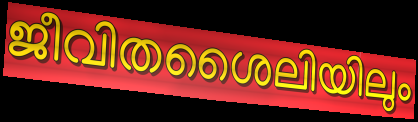
ജീവിതശൈലിയിലും